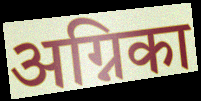
अग्निका